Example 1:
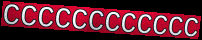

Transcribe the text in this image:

CCCCCCCCCCCC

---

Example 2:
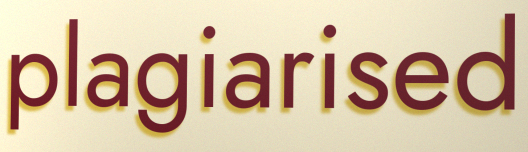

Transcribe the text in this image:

plagiarised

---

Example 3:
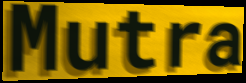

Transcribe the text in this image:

Mutra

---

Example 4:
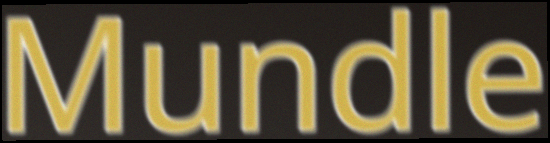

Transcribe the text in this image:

Mundle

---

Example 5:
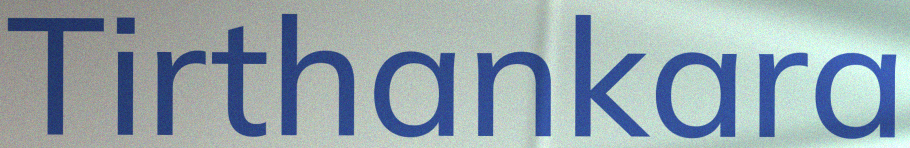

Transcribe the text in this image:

Tirthankara